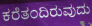
ಕರೆತಂದಿರುವುದು